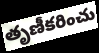
తృణీకరించు